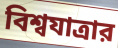
বিশ্বযাত্রার